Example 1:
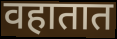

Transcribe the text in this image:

वहातात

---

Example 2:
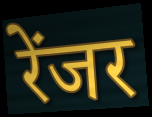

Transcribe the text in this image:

रेंजर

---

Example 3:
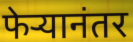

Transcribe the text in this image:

फेऱ्यानंतर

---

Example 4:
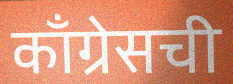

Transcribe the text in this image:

काँग्रेसची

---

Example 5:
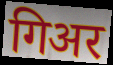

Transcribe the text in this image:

गिअर